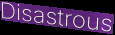
Disastrous